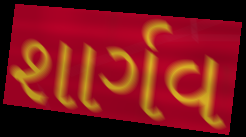
શાર્ગવ